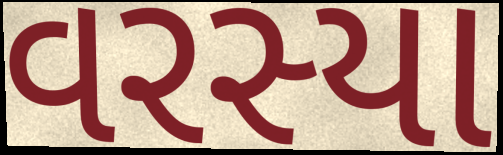
વરસ્યા